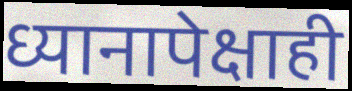
ध्यानापेक्षाही